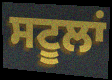
ਸਟੂਲਾਂ